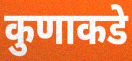
कुणाकडे